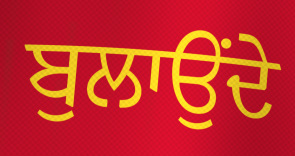
ਬੁਲਾਉਂਦੇ